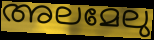
അലമേലു